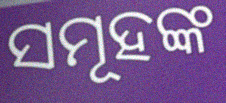
ସମୂହଙ୍କ